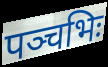
पञ्चभिः